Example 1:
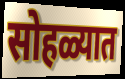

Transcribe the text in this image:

सोहळ्यात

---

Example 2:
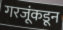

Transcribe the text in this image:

गरजूंकडून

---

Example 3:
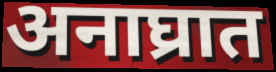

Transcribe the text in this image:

अनाघ्रात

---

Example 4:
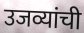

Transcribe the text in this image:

उजव्यांची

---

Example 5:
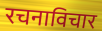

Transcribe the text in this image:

रचनाविचार